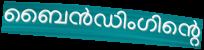
ബൈൻഡിംഗിന്റെ